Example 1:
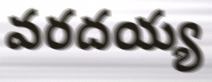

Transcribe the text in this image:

వరదయ్య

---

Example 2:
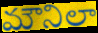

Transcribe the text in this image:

మౌనిలా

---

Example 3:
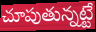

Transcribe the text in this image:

చూపుతున్నట్టే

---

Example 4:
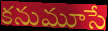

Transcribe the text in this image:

కనుమూసే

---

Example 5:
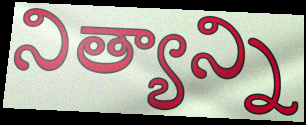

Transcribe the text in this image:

నిత్యాన్ని